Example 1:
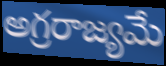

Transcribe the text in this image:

అగ్రరాజ్యమే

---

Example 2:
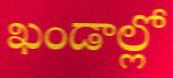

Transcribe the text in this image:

ఖండాల్లో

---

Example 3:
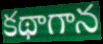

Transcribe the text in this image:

కథాగాన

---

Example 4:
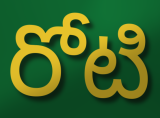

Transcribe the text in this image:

రోటి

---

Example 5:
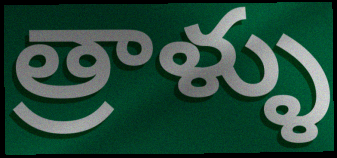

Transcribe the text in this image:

త్రాళ్ళు